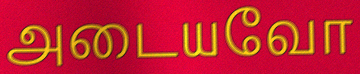
அடையவோ